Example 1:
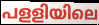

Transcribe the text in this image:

പളളിയിലെ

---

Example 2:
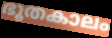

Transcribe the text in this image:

ഭൂതകാലം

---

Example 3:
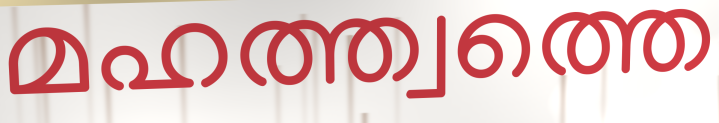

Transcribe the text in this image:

മഹത്ത്വത്തെ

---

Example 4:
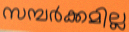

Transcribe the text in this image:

സമ്പർക്കമില്ല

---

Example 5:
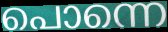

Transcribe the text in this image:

പൊന്നെ